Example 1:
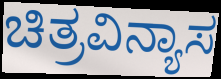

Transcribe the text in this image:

ಚಿತ್ರವಿನ್ಯಾಸ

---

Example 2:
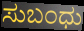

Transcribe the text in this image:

ಸುಬಂಧು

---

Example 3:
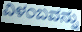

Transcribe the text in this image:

ವಿಳಂಬವನ್ನು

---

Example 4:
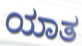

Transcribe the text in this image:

ಯಾತ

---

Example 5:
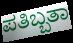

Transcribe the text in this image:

ಪತಿಬ್ಬತಾ